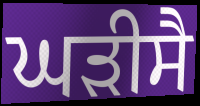
ਘੜੀਸੈ